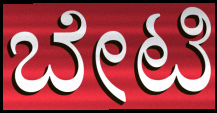
ಬೇಟಿ